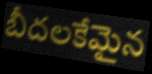
బీదలకేమైన